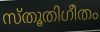
സ്തൂതിഗീതം